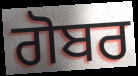
ਗੋਬਰ